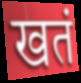
खतं